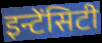
इन्टेंसिटी